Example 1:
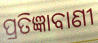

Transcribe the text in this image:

ପ୍ରତିଜ୍ଞାବାଣୀ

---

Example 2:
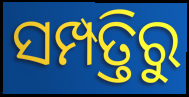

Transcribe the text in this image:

ସମ୍ପତ୍ତିରୁ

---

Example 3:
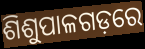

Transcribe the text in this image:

ଶିଶୁପାଳଗଡ଼ରେ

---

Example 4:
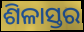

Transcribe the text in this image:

ଶିଳାସ୍ତର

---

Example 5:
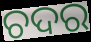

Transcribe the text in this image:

ଚଦର